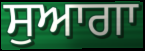
ਸੁਆਗਾ